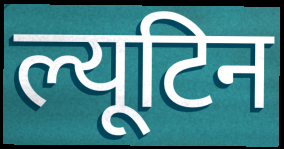
ल्यूटिन